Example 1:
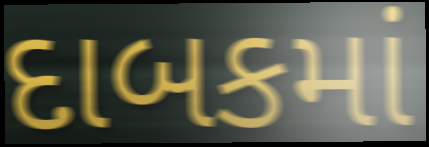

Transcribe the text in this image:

દાબકમાં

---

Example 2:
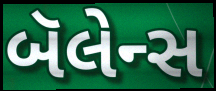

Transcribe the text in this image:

બૅલેન્સ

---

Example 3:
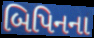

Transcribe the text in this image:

બિપિનના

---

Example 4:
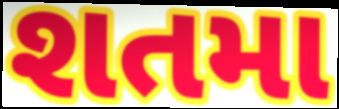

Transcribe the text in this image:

શતમા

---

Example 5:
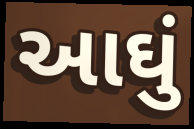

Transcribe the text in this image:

આઘું